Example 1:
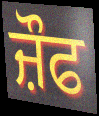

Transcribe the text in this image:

ਜ਼ੌਫ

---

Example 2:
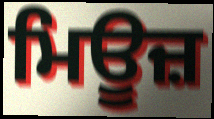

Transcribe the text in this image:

ਮਿਊਜ਼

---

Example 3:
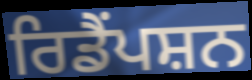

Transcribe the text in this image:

ਰਿਡੈਂਪਸ਼ਨ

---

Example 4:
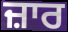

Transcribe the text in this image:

ਜ਼ਾਰ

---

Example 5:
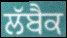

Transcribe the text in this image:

ਲੱਬੈਕ